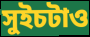
সুইচটাও